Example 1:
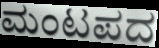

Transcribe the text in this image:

ಮಂಟಪದ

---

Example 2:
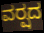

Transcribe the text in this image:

ವರ್‍ಷದ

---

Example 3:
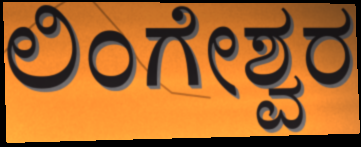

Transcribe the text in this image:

ಲಿಂಗೇಶ್ವರ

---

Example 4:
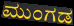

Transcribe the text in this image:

ಮುಂಗಡ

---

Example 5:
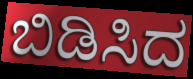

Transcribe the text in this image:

ಬಿಡಿಸಿದ